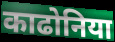
काढोनिया